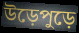
উড়েপুড়ে